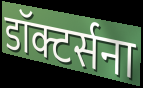
डॉक्टर्सना